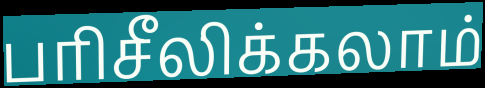
பரிசீலிக்கலாம்